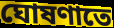
ঘোষণাতে